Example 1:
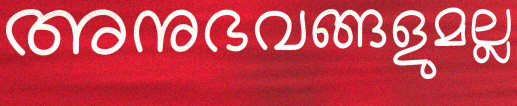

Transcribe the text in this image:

അനുഭവങ്ങളുമല്ല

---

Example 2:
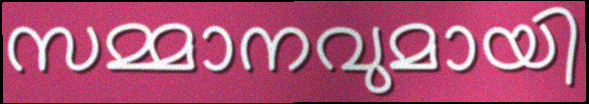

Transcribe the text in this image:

സമ്മാനവുമായി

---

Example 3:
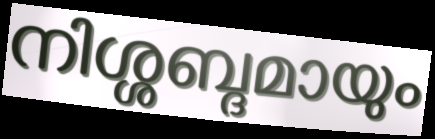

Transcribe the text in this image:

നിശ്ശബ്ദമായും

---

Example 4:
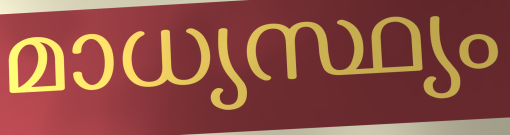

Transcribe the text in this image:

മാധ്യസ്ഥ്യം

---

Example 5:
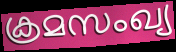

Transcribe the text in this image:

ക്രമസംഖ്യ